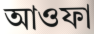
আওফা